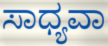
ಸಾಧ್ಯವಾ